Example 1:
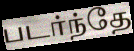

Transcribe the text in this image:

படர்ந்தே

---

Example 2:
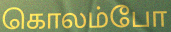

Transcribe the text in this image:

கொலம்போ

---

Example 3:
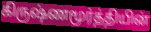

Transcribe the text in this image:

கிருஷ்ணமூர்த்தியின்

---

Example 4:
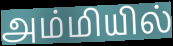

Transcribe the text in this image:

அம்மியில்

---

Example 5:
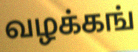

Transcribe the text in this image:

வழக்கங்